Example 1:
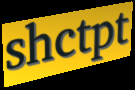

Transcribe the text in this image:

shctpt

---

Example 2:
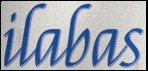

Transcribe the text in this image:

ilabas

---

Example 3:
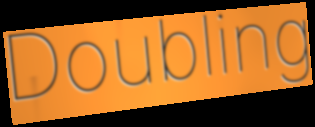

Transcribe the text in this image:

Doubling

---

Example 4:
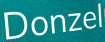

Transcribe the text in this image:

Donzel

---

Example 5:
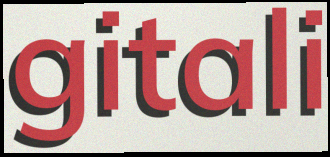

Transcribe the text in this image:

gitali